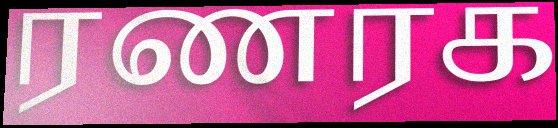
ரணரக